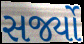
સર્જ્યો